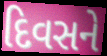
દિવસને